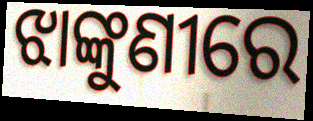
ଝାଙ୍କୁଣୀରେ